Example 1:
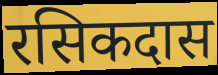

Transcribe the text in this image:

रसिकदास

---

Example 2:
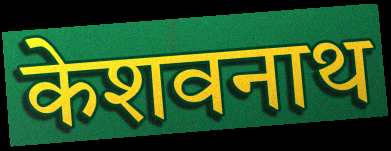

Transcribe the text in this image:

केशवनाथ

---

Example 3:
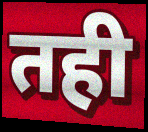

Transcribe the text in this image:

तही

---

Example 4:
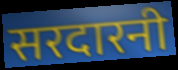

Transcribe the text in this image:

सरदारनी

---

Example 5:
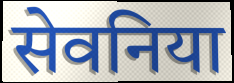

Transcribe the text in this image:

सेवनिया